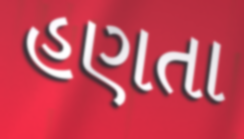
હણતા